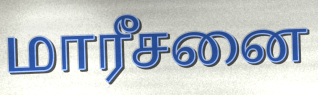
மாரீசனை